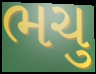
ભચુ